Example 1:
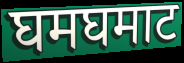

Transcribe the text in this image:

घमघमाट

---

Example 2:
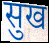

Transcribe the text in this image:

सुख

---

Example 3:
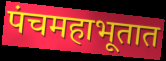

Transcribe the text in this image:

पंचमहाभूतात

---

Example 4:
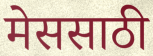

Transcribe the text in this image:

मेससाठी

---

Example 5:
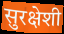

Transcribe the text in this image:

सुरक्षेशी